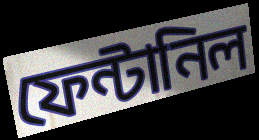
ফেন্টানিল